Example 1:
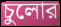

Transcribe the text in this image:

চুলোর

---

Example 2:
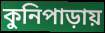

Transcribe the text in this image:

কুনিপাড়ায়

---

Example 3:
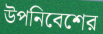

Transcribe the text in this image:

উপনিবেশের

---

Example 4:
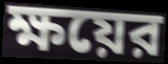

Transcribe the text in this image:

ক্ষয়ের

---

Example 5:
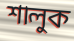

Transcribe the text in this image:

শালুক